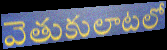
వెతుకులాటలో